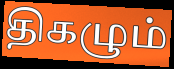
திகழும்